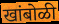
खांबोळी